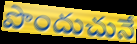
పొందుచునే